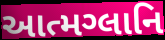
આત્મગ્લાનિ